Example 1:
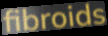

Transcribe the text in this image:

fibroids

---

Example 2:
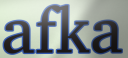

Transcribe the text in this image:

afka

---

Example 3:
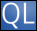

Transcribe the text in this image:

QL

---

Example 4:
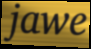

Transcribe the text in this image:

jawe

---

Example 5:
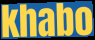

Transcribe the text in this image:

khabo